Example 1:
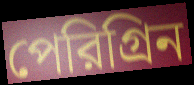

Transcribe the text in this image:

পেরিগ্রিন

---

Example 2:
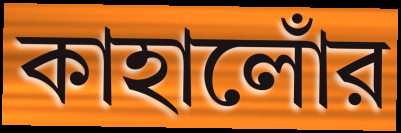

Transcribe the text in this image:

কাহালোঁর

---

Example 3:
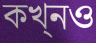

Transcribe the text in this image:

কখ্নও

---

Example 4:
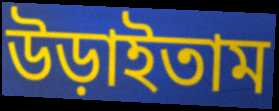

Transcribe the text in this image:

উড়াইতাম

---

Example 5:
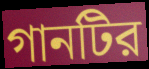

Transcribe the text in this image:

গানটির